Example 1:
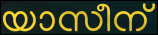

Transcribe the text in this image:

യാസീന്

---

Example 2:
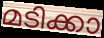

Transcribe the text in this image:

മടിക്കാ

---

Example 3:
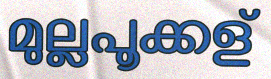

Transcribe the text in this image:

മുല്ലപൂക്കള്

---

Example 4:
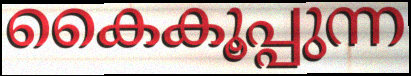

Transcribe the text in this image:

കൈകൂപ്പുന്ന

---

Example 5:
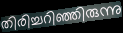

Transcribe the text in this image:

തിരിച്ചറിഞ്ഞിരുന്നു